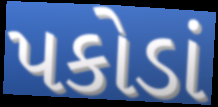
પકોડાં